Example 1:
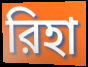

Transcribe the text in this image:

রিহা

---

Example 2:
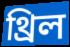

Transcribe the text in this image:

থ্রিল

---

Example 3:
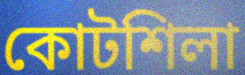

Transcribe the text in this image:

কোটশিলা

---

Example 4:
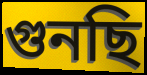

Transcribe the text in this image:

গুনছি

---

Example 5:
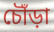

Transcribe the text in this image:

চৌঁড়া